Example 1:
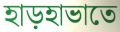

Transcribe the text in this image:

হাড়হাভাতে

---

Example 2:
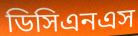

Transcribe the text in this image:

ডিসিএনএস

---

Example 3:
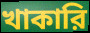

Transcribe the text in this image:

খাকারি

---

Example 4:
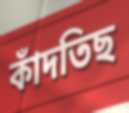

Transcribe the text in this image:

কাঁদতিছ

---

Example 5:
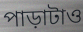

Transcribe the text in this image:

পাড়াটাও